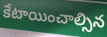
కేటాయించాల్సిన